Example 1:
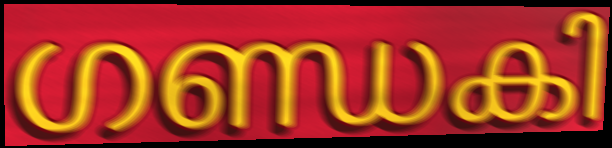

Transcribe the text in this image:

ഗണ്ഡകി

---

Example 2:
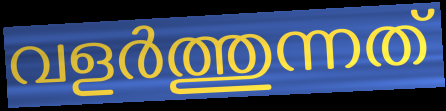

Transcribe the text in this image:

വളർത്തുന്നത്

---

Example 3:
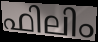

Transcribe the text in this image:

ഫിലിം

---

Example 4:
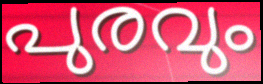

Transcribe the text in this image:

പുരവും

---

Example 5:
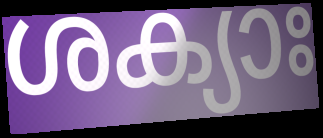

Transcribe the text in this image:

ശക്യാഃ